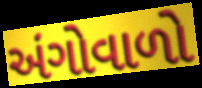
અંગોવાળો